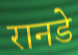
रानडे